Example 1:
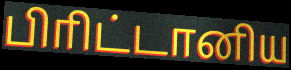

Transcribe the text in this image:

பிரிட்டானிய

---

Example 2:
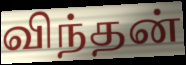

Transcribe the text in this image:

விந்தன்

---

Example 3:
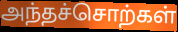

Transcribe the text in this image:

அந்தச்சொற்கள்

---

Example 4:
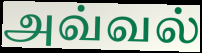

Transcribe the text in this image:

அவ்வல்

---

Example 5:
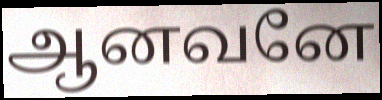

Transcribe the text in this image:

ஆனவனே